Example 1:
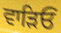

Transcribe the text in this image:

ਵਾੜਿਓਂ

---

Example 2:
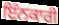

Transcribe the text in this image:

ਇੰਨਕਾਰੀ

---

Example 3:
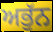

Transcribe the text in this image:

ਅਭੁੱਨ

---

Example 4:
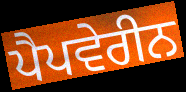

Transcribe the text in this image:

ਪੈਪਵੇਰੀਨ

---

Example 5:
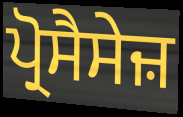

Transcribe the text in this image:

ਪ੍ਰੋਸੈਸੇਜ਼